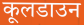
कूलडाउन